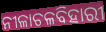
ନୀଳାଚଳବିହାରୀ